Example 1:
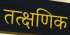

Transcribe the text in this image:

तत्क्षणिक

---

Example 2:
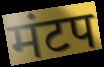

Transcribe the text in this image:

मंटप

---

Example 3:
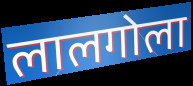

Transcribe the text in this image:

लालगोला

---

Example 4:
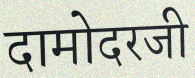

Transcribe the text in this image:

दामोदरजी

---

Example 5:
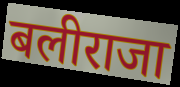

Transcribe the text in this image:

बलीराजा